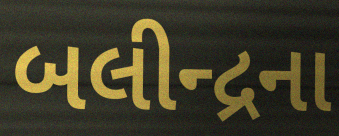
બલીન્દ્રના